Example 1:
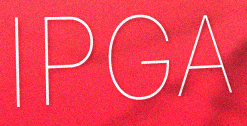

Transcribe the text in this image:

IPGA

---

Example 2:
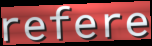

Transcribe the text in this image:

refere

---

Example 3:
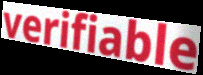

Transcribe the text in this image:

verifiable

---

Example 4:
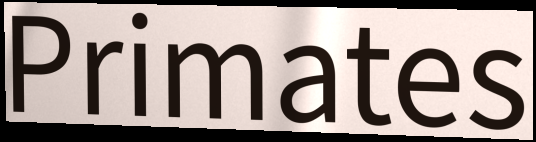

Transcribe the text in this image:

Primates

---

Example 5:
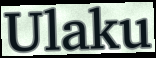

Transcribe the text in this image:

Ulaku